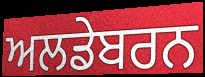
ਅਲਡੇਬਰਨ